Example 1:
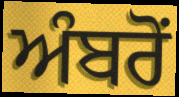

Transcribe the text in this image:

ਅੰਬਰੋਂ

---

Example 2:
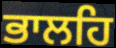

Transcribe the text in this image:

ਭਾਲਹਿ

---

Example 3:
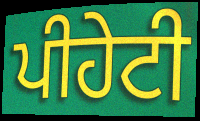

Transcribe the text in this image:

ਪੀਹੇਟੀ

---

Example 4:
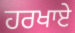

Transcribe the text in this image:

ਹਰਖਾਏ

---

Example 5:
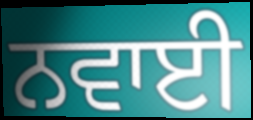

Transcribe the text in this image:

ਨਵਾਈ